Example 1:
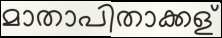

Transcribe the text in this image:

മാതാപിതാക്കള്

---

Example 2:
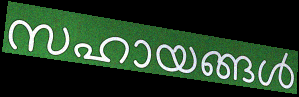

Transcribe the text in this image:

സഹായങ്ങൾ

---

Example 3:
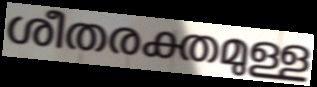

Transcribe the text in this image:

ശീതരക്തമുള്ള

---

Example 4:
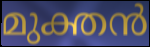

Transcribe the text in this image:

മുക്തൻ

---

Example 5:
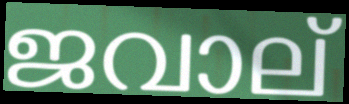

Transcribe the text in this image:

ജവാല്